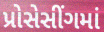
પ્રોસેસીંગમાં